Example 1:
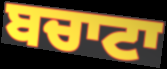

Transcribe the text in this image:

ਬਚਾਟਾ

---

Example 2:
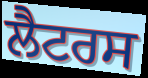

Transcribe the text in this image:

ਲੈਟਰਸ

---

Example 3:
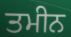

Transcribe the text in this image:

ਤਮੀਨ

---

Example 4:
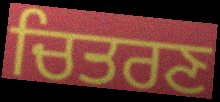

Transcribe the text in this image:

ਚਿਤਰਣ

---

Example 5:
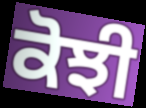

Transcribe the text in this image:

ਕੋਝੀ